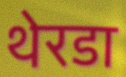
थेरडा